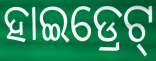
ହାଇଡ୍ରେଟ୍